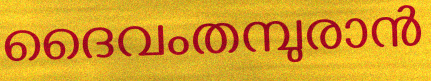
ദൈവംതമ്പുരാൻ